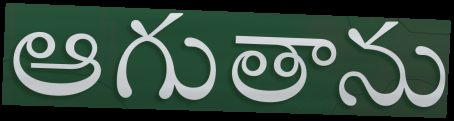
ఆగుతాను